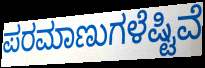
ಪರಮಾಣುಗಳೆಷ್ಟಿವೆ